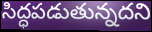
సిద్ధపడుతున్నదని